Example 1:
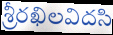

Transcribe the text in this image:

శ్రీరఖిలవిదసి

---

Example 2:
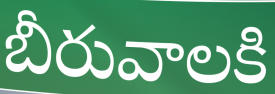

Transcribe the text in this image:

బీరువాలకి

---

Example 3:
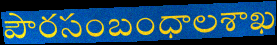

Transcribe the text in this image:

పౌరసంబంధాలశాఖ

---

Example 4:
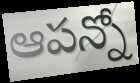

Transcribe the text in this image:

ఆపన్నో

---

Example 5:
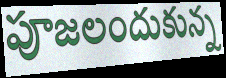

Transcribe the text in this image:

పూజలందుకున్న